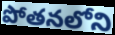
పోతనలోని